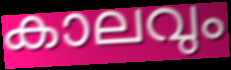
കാലവും